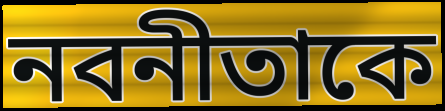
নবনীতাকে